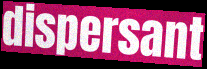
dispersant